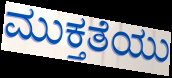
ಮುಕ್ತತೆಯು